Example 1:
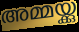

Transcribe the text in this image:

അമ്മയ്ക്കു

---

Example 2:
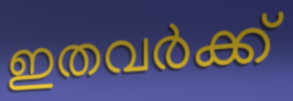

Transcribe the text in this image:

ഇതവർക്ക്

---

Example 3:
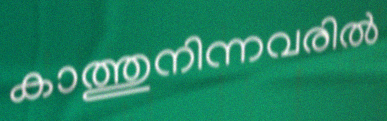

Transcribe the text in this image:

കാത്തുനിന്നവരിൽ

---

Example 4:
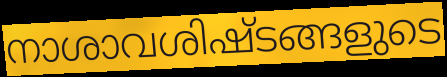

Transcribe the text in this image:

നാശാവശിഷ്ടങ്ങളുടെ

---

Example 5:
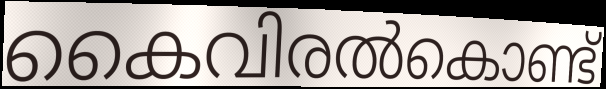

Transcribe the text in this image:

കൈവിരൽകൊണ്ട്